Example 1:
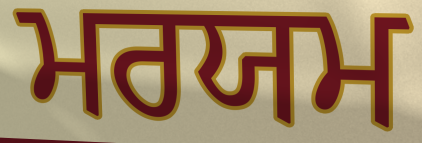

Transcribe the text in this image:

ਮਰਯਮ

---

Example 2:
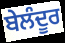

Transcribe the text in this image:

ਬੇਲੰਦੂਰ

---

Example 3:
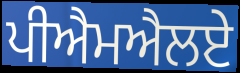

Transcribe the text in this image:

ਪੀਐਮਐਲਏ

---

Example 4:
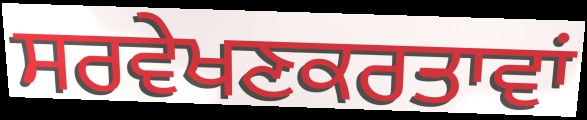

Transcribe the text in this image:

ਸਰਵੇਖਣਕਰਤਾਵਾਂ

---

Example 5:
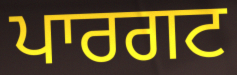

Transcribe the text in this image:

ਪਾਰਗਟ